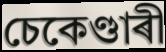
চেকেণ্ডাৰী